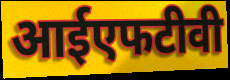
आईएफटीवी